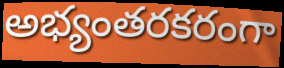
అభ్యంతరకరంగా